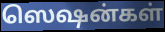
ஸெஷன்கள்